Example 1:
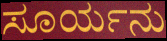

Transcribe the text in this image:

ಸೂರ್ಯನು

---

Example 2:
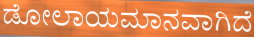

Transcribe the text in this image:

ಡೋಲಾಯಮಾನವಾಗಿದೆ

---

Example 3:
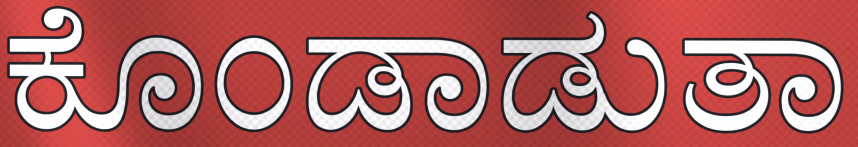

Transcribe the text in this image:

ಕೊಂಡಾಡುತಾ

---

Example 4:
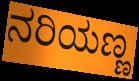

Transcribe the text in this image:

ನರಿಯಣ್ಣ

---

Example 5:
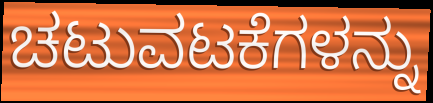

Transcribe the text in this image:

ಚಟುವಟಕೆಗಳನ್ನು